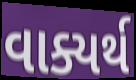
વાક્યર્થ